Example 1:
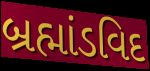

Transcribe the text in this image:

બ્રહ્માંડવિદ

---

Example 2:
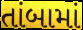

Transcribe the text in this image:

તાંબામાં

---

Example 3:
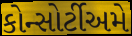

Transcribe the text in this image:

કોન્સોર્ટીઅમે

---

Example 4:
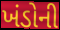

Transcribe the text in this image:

ખંડોની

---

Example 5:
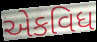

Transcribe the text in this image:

એકવિધ